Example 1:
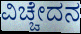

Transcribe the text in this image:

ವಿಚ್ಚೇದನ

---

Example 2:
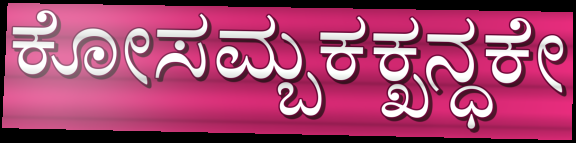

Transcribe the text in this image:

ಕೋಸಮ್ಬಕಕ್ಖನ್ಧಕೇ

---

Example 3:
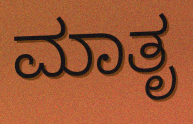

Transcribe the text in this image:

ಮಾತೃ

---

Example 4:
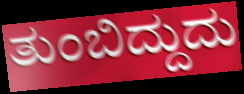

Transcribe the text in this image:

ತುಂಬಿದ್ದುದು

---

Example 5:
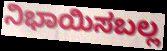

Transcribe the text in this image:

ನಿಭಾಯಿಸಬಲ್ಲ